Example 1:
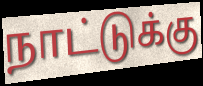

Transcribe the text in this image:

நாட்டுக்கு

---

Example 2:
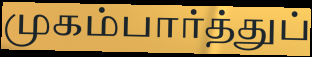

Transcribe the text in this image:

முகம்பார்த்துப்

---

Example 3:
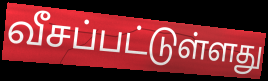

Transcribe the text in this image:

வீசப்பட்டுள்ளது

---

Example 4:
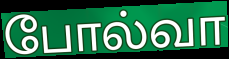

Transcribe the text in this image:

போல்வா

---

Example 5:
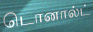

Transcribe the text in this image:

டொனால்ட்